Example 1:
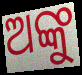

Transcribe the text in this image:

ଅଙ୍କୁ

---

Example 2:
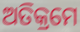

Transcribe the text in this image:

ଅତିକ୍ରମେ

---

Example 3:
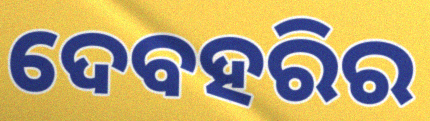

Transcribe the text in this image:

ଦେବହରିର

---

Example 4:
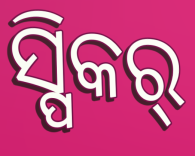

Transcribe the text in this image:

ସ୍ପିକର୍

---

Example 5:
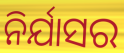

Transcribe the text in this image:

ନିର୍ଯାସର